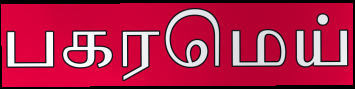
பகரமெய்